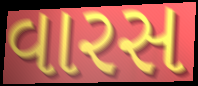
વારસ